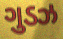
ગુડઝ